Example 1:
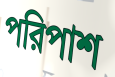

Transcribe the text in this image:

পরিপাশ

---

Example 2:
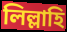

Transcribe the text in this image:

লিল্লাহি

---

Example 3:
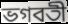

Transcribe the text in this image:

ভগবতী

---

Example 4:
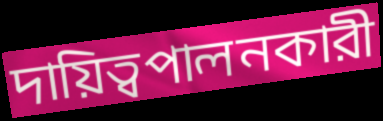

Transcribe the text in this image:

দায়িত্বপালনকারী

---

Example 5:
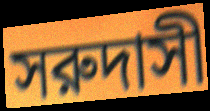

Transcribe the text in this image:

সরুদাসী